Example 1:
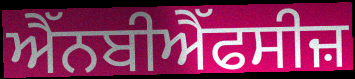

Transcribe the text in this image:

ਐੱਨਬੀਐੱਫਸੀਜ਼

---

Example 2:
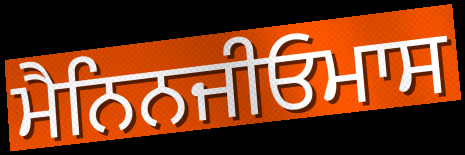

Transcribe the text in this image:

ਮੈਨਿਨਜੀਓਮਾਸ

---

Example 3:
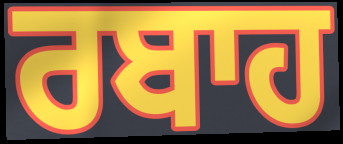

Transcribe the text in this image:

ਰਬਾਹ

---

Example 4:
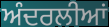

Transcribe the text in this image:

ਅੰਦਰਲੀਆਂ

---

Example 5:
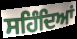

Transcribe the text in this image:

ਸਹਿੰਦਿਆਂ